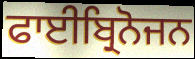
ਫਾਈਬ੍ਰਿਨੋਜਨ